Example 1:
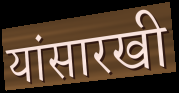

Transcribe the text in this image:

यांसारखी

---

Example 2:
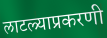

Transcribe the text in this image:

लाटल्याप्रकरणी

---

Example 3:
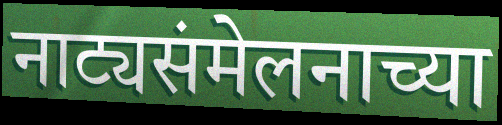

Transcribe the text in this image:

नाट्यसंमेलनाच्या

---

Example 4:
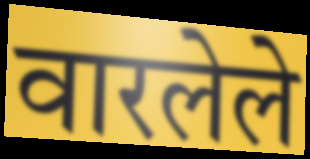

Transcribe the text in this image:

वारलेले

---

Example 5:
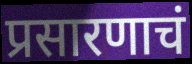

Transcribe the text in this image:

प्रसारणाचं